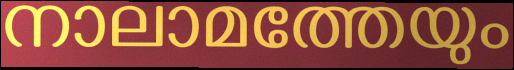
നാലാമത്തേയും